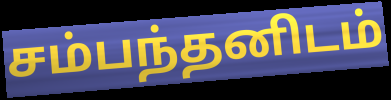
சம்பந்தனிடம்